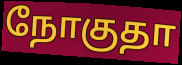
நோகுதா